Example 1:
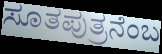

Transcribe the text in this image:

ಸೂತಪುತ್ರನೆಂಬ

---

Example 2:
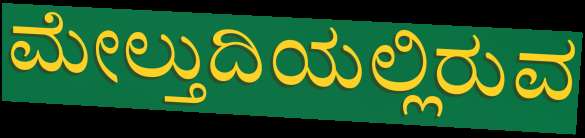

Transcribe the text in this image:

ಮೇಲ್ತುದಿಯಲ್ಲಿರುವ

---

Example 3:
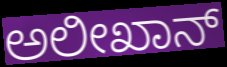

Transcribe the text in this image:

ಅಲೀಖಾನ್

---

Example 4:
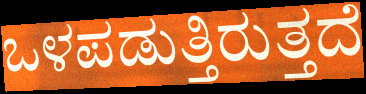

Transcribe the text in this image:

ಒಳಪಡುತ್ತಿರುತ್ತದೆ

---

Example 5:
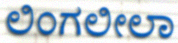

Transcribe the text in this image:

ಲಿಂಗಲೀಲಾ